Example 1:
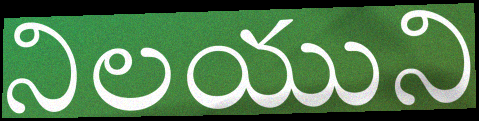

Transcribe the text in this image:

నిలయుని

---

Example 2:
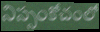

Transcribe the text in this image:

నిస్సంకోచంలో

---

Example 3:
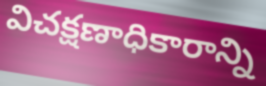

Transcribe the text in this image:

విచక్షణాధికారాన్ని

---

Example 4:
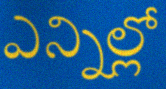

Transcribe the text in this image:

ఎన్నిల్లో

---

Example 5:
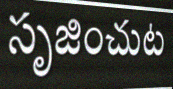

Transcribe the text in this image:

సృజించుట